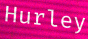
Hurley